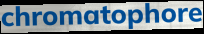
chromatophore